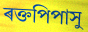
ৰক্তপিপাসু